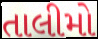
તાલીમો